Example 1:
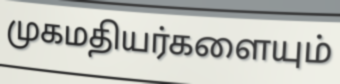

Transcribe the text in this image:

முகமதியர்களையும்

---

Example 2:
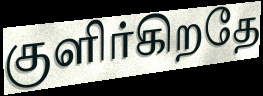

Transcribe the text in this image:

குளிர்கிறதே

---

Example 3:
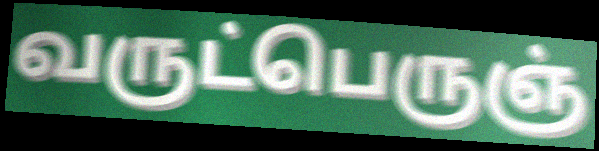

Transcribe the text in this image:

வருட்பெருஞ்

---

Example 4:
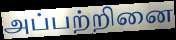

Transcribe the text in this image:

அப்பற்றினை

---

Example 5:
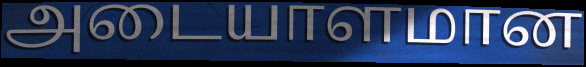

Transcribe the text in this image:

அடையாளமான